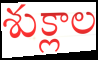
శుక్లాల